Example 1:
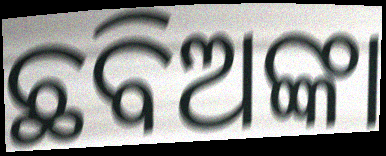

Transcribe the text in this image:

ଛବିଅଙ୍କା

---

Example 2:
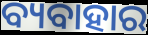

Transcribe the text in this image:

ବ୍ୟବାହାର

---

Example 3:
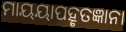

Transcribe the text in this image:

ମାୟୟାପହୃତଜ୍ଞାନା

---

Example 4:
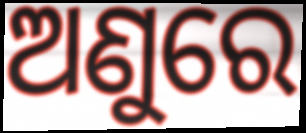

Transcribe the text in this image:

ଅଣୁରେ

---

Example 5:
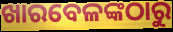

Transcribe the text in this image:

ଖାରବେଳଙ୍କଠାରୁ